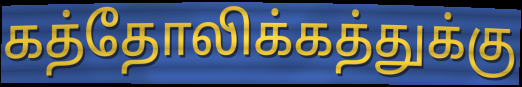
கத்தோலிக்கத்துக்கு